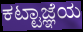
ಕಟ್ಟಾಜ್ಞೆಯ